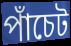
পাঁচেট